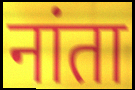
नांता